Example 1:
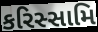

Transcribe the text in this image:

કરિસ્સામિ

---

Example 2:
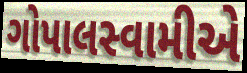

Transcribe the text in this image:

ગોપાલસ્વામીએ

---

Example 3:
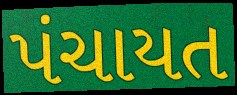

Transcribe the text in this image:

પંચાયત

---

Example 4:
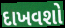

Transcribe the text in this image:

દાખવશો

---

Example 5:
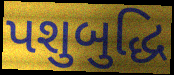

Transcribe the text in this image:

પશુબુદ્ધિ